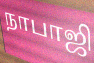
நாபாஜி